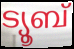
ട്യൂബ്